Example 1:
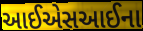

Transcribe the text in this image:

આઈએસઆઈના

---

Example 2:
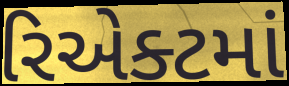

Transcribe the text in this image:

રિએક્ટમાં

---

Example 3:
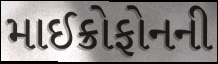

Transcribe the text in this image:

માઈક્રોફોનની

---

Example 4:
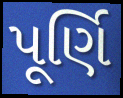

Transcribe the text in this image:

પૂર્ણિ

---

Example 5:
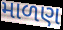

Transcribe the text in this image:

માળણ